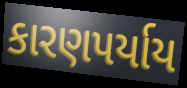
કારણપર્યાય